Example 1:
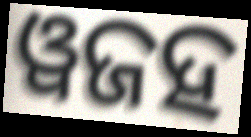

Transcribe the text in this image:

ୱଜହ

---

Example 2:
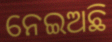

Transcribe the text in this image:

ନେଇଅଛି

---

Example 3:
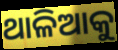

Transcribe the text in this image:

ଥାଳିଆକୁ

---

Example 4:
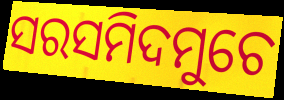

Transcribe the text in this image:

ସରସମିଦମୁଚେ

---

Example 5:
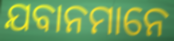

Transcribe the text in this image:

ଯବାନମାନେ